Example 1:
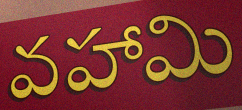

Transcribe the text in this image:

వహామి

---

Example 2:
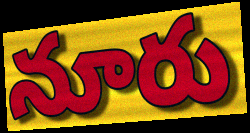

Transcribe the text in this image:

నూరు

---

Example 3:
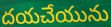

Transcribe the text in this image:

దయచేయును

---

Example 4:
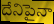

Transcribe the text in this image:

దేనిపైనా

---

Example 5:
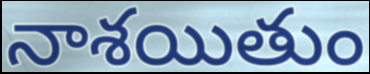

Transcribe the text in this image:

నాశయితుం